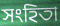
সংহিতা